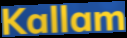
Kallam